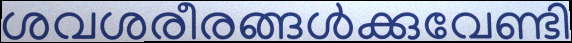
ശവശരീരങ്ങൾക്കുവേണ്ടി